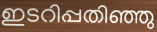
ഇടറിപ്പതിഞ്ഞു